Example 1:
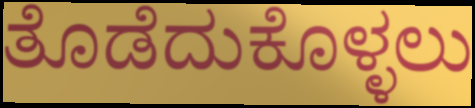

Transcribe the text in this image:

ತೊಡೆದುಕೊಳ್ಳಲು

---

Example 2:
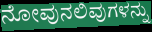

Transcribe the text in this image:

ನೋವುನಲಿವುಗಳನ್ನು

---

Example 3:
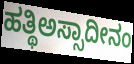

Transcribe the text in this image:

ಹತ್ಥಿಅಸ್ಸಾದೀನಂ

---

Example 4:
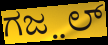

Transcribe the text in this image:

ಗಜ಼ಲ್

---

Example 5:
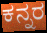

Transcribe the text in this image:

ಕನ್ನರ